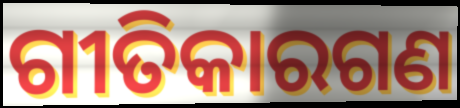
ଗୀତିକାରଗଣ